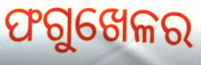
ଫଗୁଖେଳର